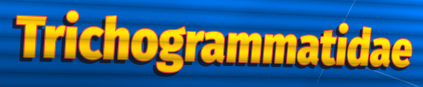
Trichogrammatidae